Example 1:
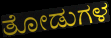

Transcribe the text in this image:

ತೋಡುಗಳ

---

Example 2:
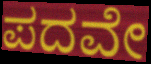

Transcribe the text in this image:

ಪದವೇ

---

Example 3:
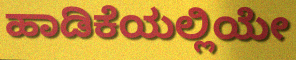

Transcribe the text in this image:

ಹಾಡಿಕೆಯಲ್ಲಿಯೇ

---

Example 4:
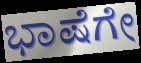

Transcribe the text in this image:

ಭಾಷೆಗೇ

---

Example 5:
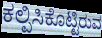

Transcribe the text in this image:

ಕಲ್ಪಿಸಿಕೊಟ್ಟಿರುವ